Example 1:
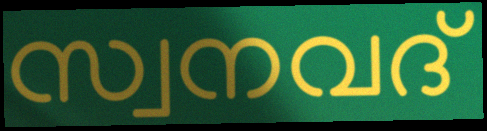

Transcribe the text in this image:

സ്വനവദ്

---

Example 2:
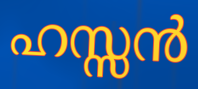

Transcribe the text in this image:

ഹസ്സൻ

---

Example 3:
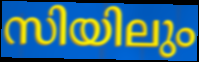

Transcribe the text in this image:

സിയിലും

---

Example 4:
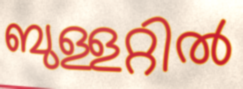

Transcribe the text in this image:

ബുള്ളറ്റിൽ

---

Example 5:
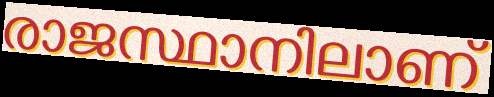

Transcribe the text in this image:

രാജസ്ഥാനിലാണ്